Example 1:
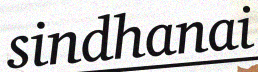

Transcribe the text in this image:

sindhanai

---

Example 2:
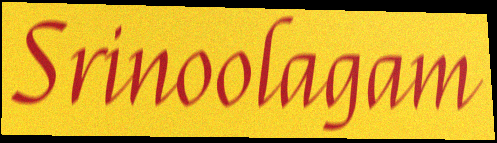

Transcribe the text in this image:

Srinoolagam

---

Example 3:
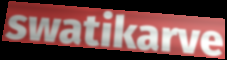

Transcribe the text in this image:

swatikarve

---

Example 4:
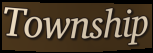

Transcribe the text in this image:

Township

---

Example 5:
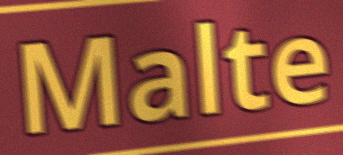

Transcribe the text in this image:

Malte